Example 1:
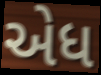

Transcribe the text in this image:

એધ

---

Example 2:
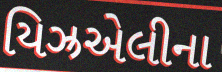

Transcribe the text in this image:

યિઝ્રએલીના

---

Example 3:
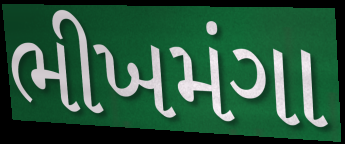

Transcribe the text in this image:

ભીખમંગા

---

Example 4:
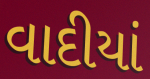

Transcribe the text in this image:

વાદીયાં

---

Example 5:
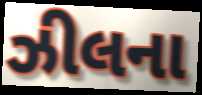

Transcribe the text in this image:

ઝીલના